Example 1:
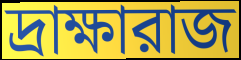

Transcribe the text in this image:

দ্রাক্ষারাজ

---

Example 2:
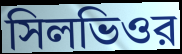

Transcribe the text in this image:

সিলভিওর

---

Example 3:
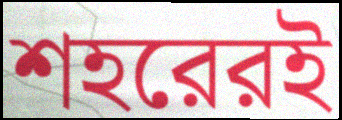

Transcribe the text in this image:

শহরেরই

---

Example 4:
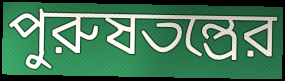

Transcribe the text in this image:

পুরুষতন্ত্রের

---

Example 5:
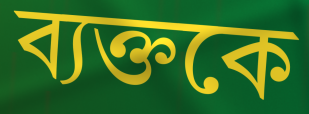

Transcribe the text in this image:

ব্যক্তকে